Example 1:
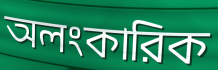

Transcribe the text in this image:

অলংকারিক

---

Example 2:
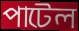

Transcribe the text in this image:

পাটেল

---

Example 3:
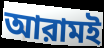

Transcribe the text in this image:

আরামই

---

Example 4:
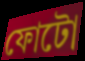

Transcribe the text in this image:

ফোটো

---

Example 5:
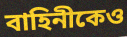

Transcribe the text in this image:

বাহিনীকেও